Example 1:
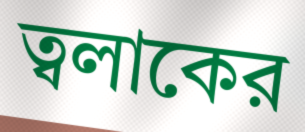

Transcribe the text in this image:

ত্বলাকের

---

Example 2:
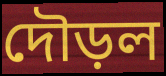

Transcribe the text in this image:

দৌড়ল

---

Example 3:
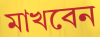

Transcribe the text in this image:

মাখবেন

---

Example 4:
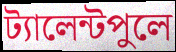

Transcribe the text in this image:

ট্যালেন্টপুলে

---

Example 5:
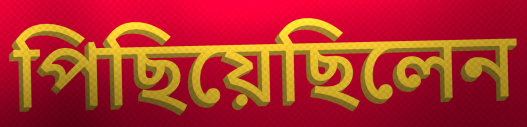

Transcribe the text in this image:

পিছিয়েছিলেন